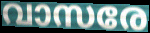
വാസരേ